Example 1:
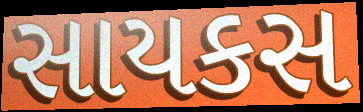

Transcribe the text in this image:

સાયકસ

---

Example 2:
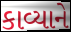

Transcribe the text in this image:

કાવ્યાને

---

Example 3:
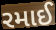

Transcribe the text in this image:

રમાઈ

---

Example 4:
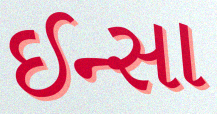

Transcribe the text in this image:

ઈન્સા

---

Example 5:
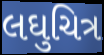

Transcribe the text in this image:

લઘુચિત્ર